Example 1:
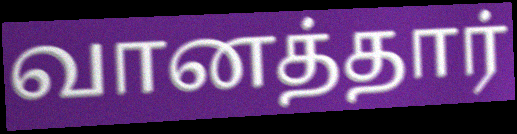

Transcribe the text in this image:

வானத்தார்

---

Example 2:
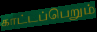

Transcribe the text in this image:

காட்டப்பெறும்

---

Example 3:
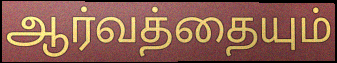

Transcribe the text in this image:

ஆர்வத்தையும்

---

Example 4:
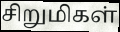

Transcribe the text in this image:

சிறுமிகள்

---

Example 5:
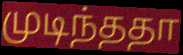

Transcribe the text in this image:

முடிந்ததா